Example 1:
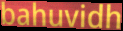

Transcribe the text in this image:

bahuvidh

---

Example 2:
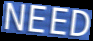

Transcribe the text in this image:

NEED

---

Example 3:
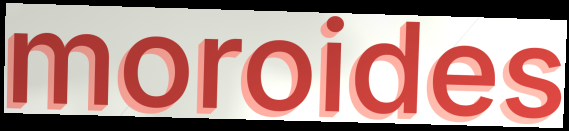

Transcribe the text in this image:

moroides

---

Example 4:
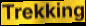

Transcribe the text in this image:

Trekking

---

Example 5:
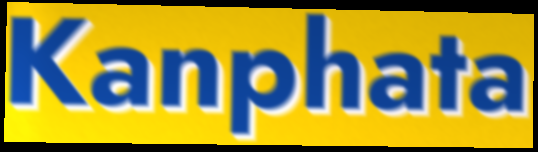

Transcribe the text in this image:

Kanphata